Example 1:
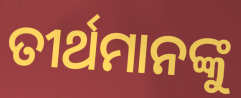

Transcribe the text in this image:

ତୀର୍ଥମାନଙ୍କୁ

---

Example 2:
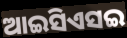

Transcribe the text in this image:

ଆଇସିଏସଇ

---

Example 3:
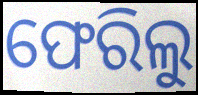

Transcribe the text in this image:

ଫେରିଲୁ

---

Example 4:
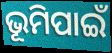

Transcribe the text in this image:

ଭୂମିପାଇଁ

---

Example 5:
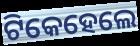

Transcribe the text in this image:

ଟିକେହେଲେ